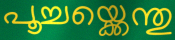
പൂച്ചയ്ക്കെന്തു